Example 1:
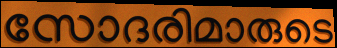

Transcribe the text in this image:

സോദരിമാരുടെ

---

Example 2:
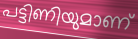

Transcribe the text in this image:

പട്ടിണിയുമാണ്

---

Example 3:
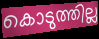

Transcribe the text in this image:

കൊടുത്തില്ല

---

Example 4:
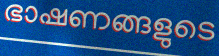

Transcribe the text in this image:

ഭാഷണങ്ങളുടെ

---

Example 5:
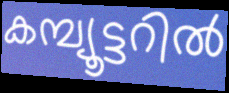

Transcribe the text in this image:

കമ്പ്യൂട്ടറിൽ